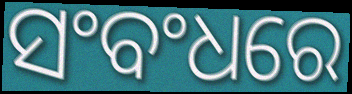
ସଂବଂଧରେ